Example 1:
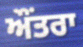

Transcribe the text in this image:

ਔਂਤਰਾ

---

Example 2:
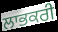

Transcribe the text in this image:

ਲਾਭਕਰੀ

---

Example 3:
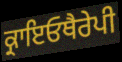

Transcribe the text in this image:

ਕ੍ਰਾਇਓਥੈਰੇਪੀ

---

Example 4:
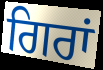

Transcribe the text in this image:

ਗਿਰਾਂ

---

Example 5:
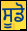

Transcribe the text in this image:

ਸੂਡੋ